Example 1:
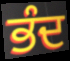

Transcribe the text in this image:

ਭੰਦ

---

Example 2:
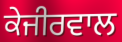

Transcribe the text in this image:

ਕੇਜੀਰਵਾਲ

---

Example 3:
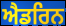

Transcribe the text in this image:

ਐਡਰਿਨ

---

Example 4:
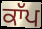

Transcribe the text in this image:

ਕਾੱਪ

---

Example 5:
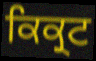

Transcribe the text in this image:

ਕਿਕ੍ਰਟ